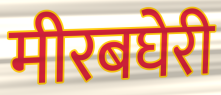
मीरबघेरी